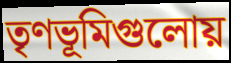
তৃণভূমিগুলোয়